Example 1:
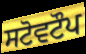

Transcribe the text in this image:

ਸਟੋਵਟੌਪ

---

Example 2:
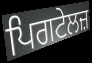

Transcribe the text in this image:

ਪਿਗਟੇਲਜ਼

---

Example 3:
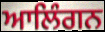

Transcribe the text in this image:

ਆਲਿੰਗਨ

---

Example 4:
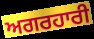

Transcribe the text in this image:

ਅਗਰਹਾਰੀ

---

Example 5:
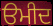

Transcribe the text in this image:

ੳਮੀਦ